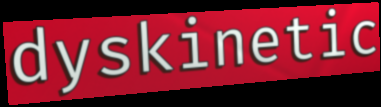
dyskinetic